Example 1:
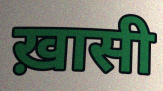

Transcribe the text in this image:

ख़ासी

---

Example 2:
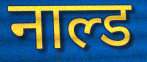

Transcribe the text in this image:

नाल्ड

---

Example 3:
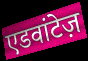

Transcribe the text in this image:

एडवांटेज़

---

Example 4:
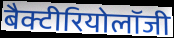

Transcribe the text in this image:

बैक्टीरियोलॉजी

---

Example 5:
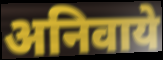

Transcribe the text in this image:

अनिवाये